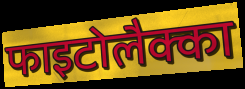
फाइटोलैक्का